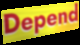
Depend